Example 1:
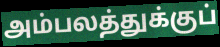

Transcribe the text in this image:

அம்பலத்துக்குப்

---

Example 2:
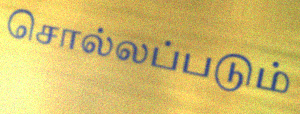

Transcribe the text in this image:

சொல்லப்படும்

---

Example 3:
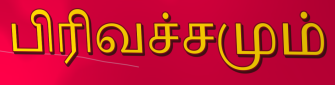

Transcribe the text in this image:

பிரிவச்சமும்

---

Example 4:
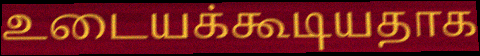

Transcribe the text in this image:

உடையக்கூடியதாக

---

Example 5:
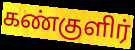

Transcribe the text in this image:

கண்குளிர்